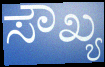
ಸೌಖ್ಯ